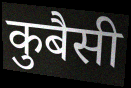
कुबैसी